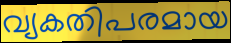
വ്യകതിപരമായ